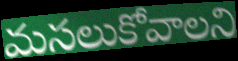
మసలుకోవాలని